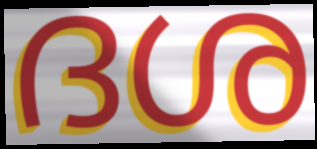
ദശ